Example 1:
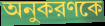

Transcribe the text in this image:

অনুকরণকে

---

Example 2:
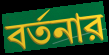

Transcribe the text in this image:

বর্তনার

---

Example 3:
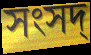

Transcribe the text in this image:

সংসদ্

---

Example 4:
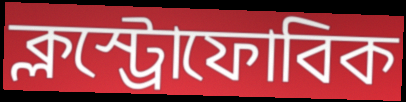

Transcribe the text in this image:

ক্লস্ট্রোফোবিক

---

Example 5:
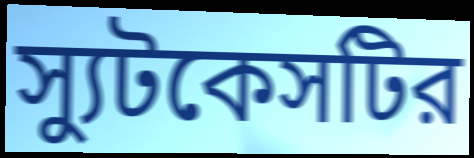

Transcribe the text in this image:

স্যুটকেসটির